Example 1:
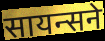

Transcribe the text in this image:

सायन्सने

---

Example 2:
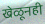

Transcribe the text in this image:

खेळूनही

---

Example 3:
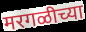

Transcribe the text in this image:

मरगळीच्या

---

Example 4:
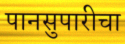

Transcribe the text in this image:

पानसुपारीचा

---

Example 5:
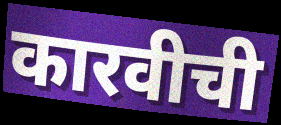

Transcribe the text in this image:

कारवीची